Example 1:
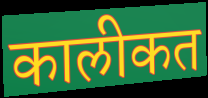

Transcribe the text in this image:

कालीकत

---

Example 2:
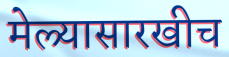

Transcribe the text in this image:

मेल्यासारखीच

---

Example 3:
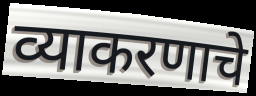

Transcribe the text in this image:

व्याकरणाचे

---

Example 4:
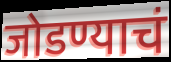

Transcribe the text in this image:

जोडण्याचं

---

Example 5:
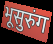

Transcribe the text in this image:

भूसुरुंग